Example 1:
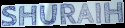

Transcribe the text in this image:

SHURAIH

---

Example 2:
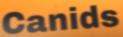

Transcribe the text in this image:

Canids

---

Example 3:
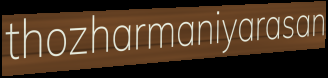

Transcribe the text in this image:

thozharmaniyarasan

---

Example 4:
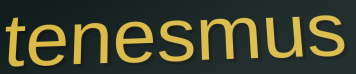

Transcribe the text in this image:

tenesmus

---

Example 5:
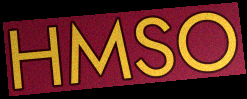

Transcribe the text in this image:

HMSO